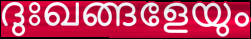
ദുഃഖങ്ങളേയും